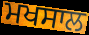
ਮਖਸਾਲ